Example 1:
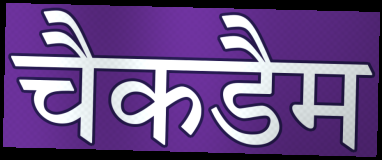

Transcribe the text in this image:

चैकडैम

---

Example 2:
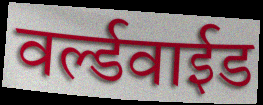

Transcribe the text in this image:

वर्ल्डवाईड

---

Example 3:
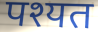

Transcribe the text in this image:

पश्यत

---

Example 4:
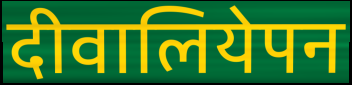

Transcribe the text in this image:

दीवालियेपन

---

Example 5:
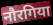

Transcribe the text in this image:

नौरगिया